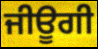
ਜੀਊਗੀ